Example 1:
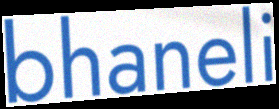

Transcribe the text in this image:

bhaneli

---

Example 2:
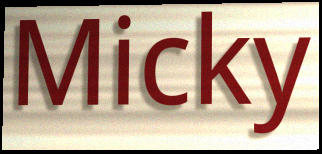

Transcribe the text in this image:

Micky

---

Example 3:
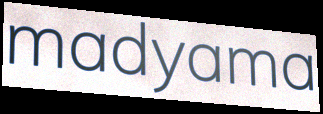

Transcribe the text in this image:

madyama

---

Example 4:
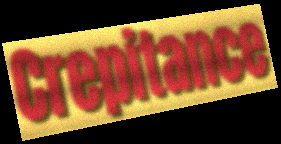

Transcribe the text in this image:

Crepitance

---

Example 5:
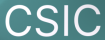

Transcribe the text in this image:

CSIC